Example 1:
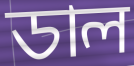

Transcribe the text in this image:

ডাল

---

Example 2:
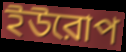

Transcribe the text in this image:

ইউরোপ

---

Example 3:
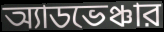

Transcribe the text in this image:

অ্যাডভেঞ্চার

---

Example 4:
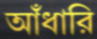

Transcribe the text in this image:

আঁধারি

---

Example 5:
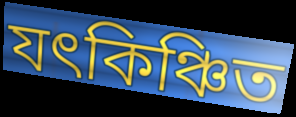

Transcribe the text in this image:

যৎকিঞ্চিত